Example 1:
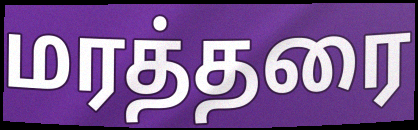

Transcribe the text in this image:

மரத்தரை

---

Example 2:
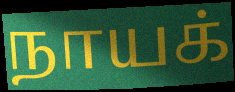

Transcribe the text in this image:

நாயக்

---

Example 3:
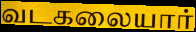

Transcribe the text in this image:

வடகலையார்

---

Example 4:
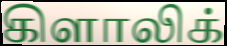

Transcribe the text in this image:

கிளாலிக்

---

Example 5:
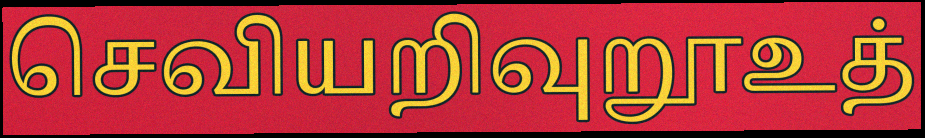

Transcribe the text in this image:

செவியறிவுறூஉத்